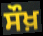
ਸੌਖ਼